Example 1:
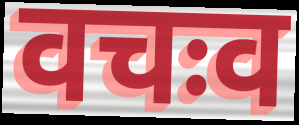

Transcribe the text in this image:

वचःव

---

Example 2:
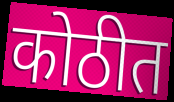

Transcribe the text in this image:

कोठीत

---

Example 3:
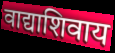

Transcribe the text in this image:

वाद्याशिवाय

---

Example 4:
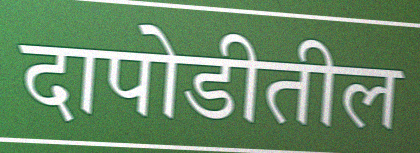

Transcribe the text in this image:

दापोडीतील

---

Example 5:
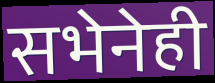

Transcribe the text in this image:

सभेनेही